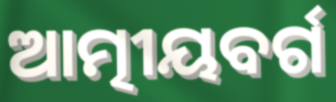
ଆତ୍ମୀୟବର୍ଗ